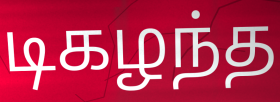
டிகழந்த